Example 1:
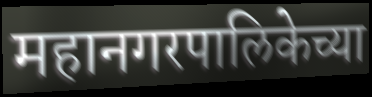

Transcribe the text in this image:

महानगरपालिकेच्या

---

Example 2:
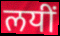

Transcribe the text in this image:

लयीं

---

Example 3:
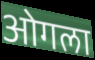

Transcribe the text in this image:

ओगला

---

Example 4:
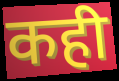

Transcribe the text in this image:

कही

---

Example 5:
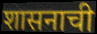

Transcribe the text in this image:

शासनाची